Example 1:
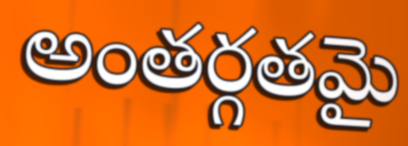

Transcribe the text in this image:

అంతర్గతమై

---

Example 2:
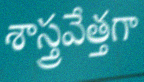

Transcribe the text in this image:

శాస్త్రవేత్తగా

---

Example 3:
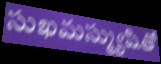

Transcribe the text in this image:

సుఖమస్మ్యుషితో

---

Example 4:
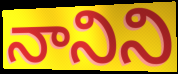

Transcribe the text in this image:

నానిని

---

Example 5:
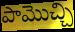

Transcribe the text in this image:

పామొచ్చి